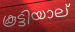
കൂട്ടിയാല്